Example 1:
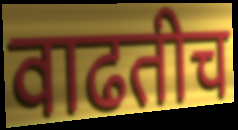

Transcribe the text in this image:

वाढतीच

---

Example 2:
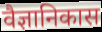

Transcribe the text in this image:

वैज्ञानिकास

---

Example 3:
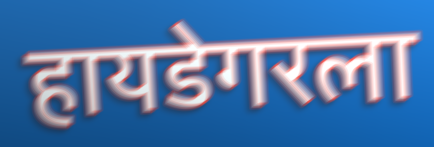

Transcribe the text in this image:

हायडेगरला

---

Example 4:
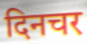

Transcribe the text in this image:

दिनचर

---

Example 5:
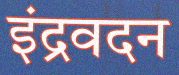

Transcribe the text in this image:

इंद्रवदन